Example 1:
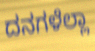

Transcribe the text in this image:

ದನಗಳೆಲ್ಲಾ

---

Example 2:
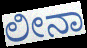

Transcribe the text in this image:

ಲೀನಾ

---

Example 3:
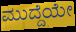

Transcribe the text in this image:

ಮುದ್ದೆಯೇ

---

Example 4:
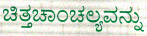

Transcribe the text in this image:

ಚಿತ್ತಚಾಂಚಲ್ಯವನ್ನು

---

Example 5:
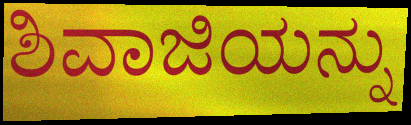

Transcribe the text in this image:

ಶಿವಾಜಿಯನ್ನು